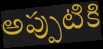
అప్పుటికి